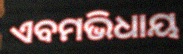
ଏବମଭିଧାୟ